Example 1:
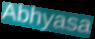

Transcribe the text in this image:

Abhyasa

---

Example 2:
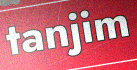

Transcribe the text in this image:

tanjim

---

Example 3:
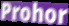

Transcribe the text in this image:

Prohor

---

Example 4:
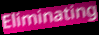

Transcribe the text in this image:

Eliminating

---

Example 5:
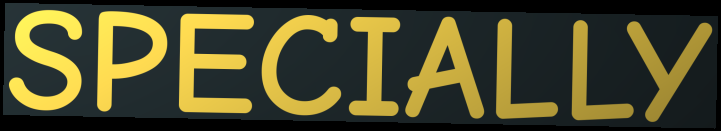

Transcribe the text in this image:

SPECIALLY